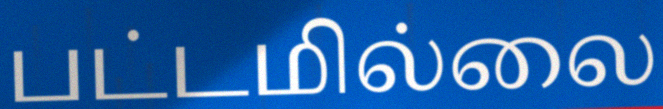
பட்டமில்லை